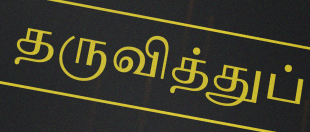
தருவித்துப்